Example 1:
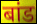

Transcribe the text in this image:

बांड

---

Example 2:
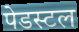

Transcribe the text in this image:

पेडस्टल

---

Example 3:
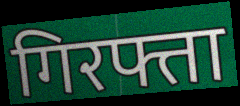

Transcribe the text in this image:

गिरफ्ता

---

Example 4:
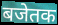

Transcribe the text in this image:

बजेतक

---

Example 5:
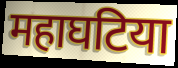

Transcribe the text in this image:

महाघटिया